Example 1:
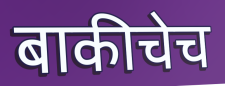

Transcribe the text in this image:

बाकीचेच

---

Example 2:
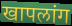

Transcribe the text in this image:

खापलांग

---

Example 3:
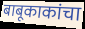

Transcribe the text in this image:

बाबूकाकांचा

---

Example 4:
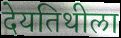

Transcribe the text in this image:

देयतिथीला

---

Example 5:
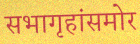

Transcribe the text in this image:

सभागृहांसमोर